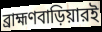
ব্রাহ্মণবাড়িয়ারই